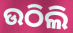
ଉଠିଲି